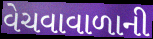
વેચવાવાળાની